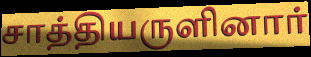
சாத்தியருளினார்